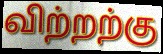
விற்றற்கு